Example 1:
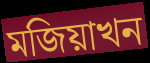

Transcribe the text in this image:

মজিয়াখন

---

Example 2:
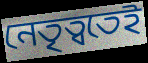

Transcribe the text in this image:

নেতৃত্বতেই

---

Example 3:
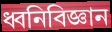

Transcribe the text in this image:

ধ্বনিবিজ্ঞান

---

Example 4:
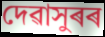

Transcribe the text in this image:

দেৱাসুৰৰ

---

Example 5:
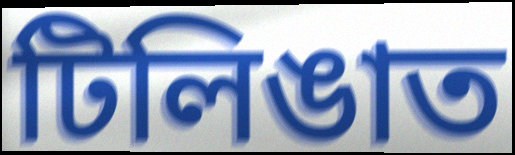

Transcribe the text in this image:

টিলিঙাত